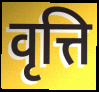
वृत्ति